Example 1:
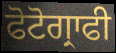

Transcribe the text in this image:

ਫੋਟੋਗ੍ਰਾਫੀ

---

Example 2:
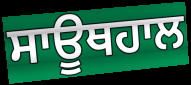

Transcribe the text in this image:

ਸਾਊਥਹਾਲ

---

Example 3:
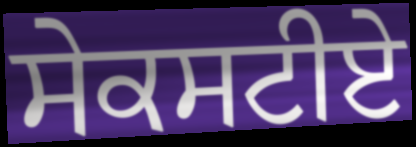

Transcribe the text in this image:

ਸੇਕਸਟੀਏ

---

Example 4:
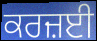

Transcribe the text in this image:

ਕਰਜ਼ਈ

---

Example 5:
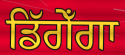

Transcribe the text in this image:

ਡਿੱਗੇਁਗਾ